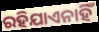
ରହିଯାଏନାହିଁ